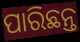
ପାରିଛନ୍ତ